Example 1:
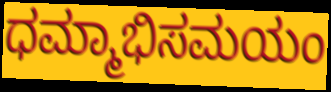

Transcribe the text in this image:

ಧಮ್ಮಾಭಿಸಮಯಂ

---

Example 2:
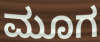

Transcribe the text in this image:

ಮೂಗ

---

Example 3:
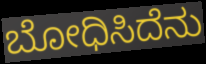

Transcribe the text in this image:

ಬೋಧಿಸಿದೆನು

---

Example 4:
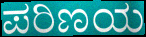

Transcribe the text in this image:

ಪರಿಣಯ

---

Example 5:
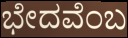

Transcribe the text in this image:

ಭೇದವೆಂಬ